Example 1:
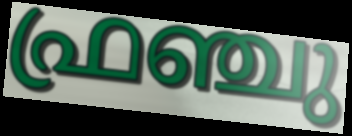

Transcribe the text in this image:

ഫ്രഞ്ചു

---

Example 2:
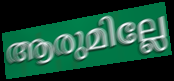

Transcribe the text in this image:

ആരുമില്ലേ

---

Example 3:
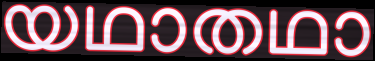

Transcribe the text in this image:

യഥാതഥാ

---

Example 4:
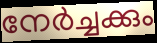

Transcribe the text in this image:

നേർച്ചക്കും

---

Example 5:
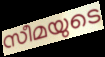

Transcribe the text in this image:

സീമയുടെ